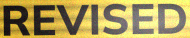
REVISED